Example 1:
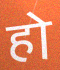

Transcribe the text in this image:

हो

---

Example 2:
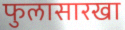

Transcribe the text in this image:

फुलासारखा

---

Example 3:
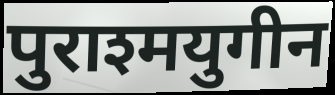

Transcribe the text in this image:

पुराश्मयुगीन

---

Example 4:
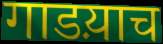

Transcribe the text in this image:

गाडय़ाच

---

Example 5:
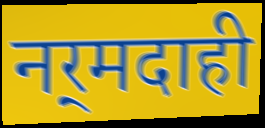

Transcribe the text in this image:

नर्मदाही